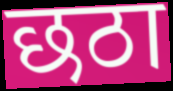
छठा